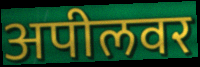
अपीलवर